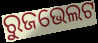
ରୁଜଭେଲଟ